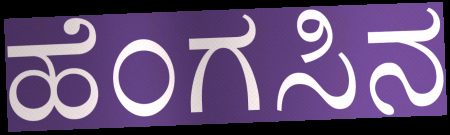
ಹೆಂಗಸಿನ